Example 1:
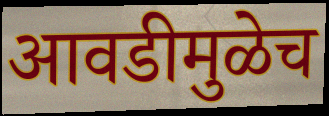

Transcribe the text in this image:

आवडीमुळेच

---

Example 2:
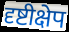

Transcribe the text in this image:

दृष्टीक्षेप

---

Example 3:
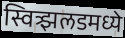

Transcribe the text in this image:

स्वित्र्झलडमध्ये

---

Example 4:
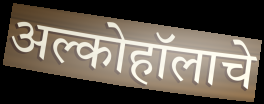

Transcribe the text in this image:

अल्कोहॉलाचे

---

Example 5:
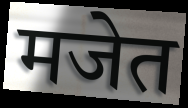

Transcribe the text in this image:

मजेत